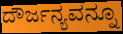
ದೌರ್ಜನ್ಯವನ್ನೂ